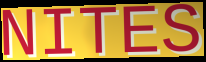
NITES